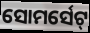
ସୋମର୍ସେଟ୍